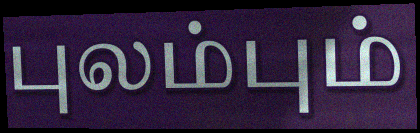
புலம்பும்